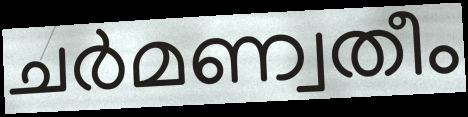
ചർമണ്വതീം